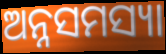
ଅନ୍ନସମସ୍ୟା